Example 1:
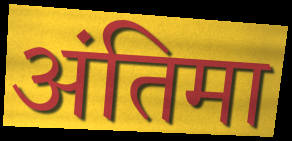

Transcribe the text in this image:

अंतिमा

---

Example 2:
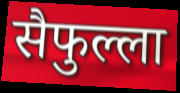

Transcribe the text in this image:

सैफुल्ला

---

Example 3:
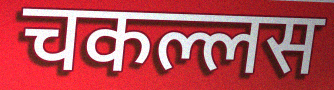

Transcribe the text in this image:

चकल्लस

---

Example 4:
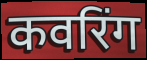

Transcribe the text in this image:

कवरिंग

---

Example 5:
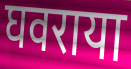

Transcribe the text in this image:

घवराया